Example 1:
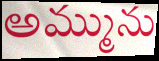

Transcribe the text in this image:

అమ్మును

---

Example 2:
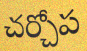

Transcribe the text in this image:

చర్చోప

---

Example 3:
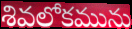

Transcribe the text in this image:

శివలోకమును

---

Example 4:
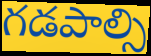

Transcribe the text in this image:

గడపాల్సి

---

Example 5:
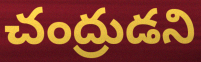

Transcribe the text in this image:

చంద్రుడని